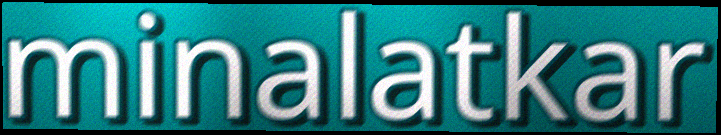
minalatkar